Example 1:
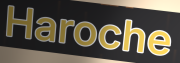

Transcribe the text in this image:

Haroche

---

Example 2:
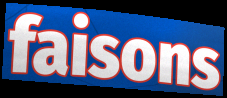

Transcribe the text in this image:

faisons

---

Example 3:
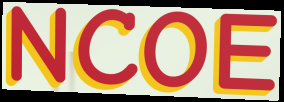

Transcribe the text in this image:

NCOE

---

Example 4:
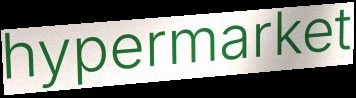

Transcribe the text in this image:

hypermarket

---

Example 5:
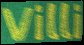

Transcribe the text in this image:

Villi